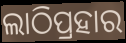
ଲାଠିପ୍ରହାର